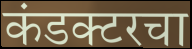
कंडक्टरचा